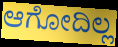
ಆಗೋದಿಲ್ಲ